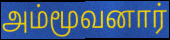
அம்மூவனார்